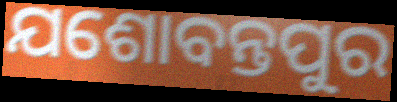
ଯଶୋବନ୍ତପୁର